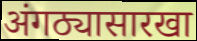
अंगठ्यासारखा